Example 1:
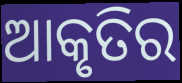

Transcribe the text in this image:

ଆକୃତିର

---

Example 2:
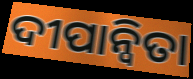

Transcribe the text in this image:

ଦୀପାନ୍ୱିତା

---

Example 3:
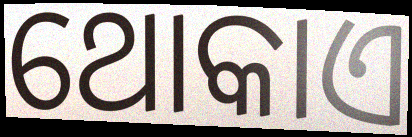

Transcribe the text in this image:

ଥୋକାଏ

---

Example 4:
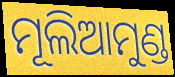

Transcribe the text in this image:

ମୂଲିଆମୁଣ୍ଡ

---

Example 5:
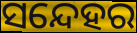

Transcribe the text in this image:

ସନ୍ଦେହର